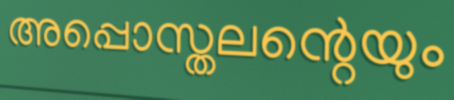
അപ്പൊസ്തലന്റെയും